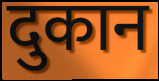
दुकान